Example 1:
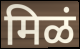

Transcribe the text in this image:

मिळं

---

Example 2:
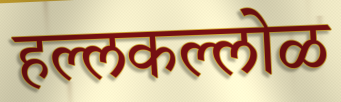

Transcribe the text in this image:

हल्लकल्लोळ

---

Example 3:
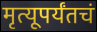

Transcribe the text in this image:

मृत्यूपर्यंतचं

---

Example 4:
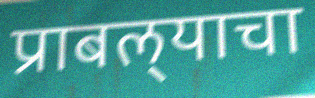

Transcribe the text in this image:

प्राबल्याचा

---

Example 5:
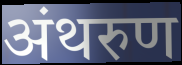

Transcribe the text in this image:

अंथरुण